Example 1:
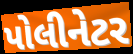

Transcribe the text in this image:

પોલીનેટર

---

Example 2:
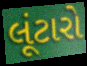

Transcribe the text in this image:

લૂંટારો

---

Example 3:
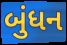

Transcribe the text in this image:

બુંધન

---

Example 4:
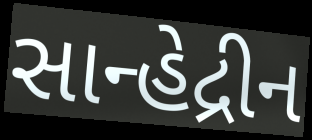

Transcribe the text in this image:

સાન્હેદ્રીન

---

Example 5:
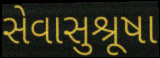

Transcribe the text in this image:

સેવાસુશ્રૂષા